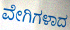
ವೇಗಿಗಳಾದ